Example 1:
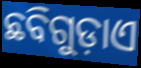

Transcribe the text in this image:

ଛବିଗୁଡ଼ାଏ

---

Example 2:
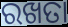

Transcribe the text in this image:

ରଖତା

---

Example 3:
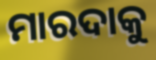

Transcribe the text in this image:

ମାରଦାକୁ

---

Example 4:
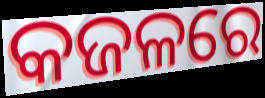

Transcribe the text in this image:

କଜଳରେ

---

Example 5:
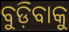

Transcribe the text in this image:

ବୁଡ଼ିବାକୁ